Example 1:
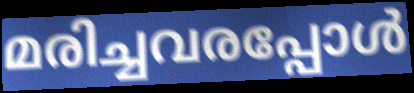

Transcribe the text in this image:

മരിച്ചവരപ്പോൾ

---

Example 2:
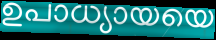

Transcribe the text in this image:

ഉപാധ്യായയെ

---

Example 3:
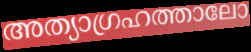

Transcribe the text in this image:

അത്യാഗ്രഹത്താലോ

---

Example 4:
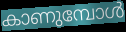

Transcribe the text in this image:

കാണുമ്പോൾ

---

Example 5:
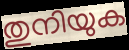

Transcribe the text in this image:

തുനിയുക